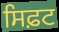
ਸਿਫ਼ਟ